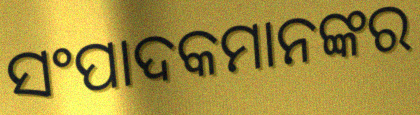
ସଂପାଦକମାନଙ୍କର